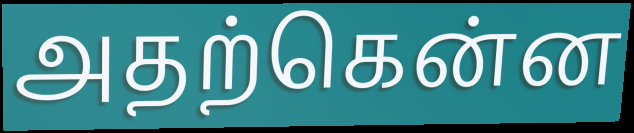
அதற்கென்ன